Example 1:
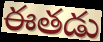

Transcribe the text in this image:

ఈతడు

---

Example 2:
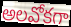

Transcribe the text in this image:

అలవోకగా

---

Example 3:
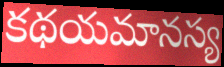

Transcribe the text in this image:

కథయమానస్య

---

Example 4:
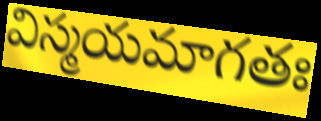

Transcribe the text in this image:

విస్మయమాగతః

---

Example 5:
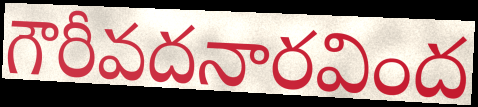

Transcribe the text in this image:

గౌరీవదనారవింద